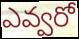
ఎవ్వరో